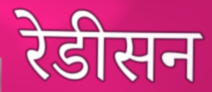
रेडीसन